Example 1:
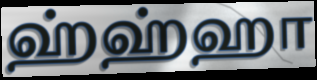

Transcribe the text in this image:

ஹ்ஹ்ஹா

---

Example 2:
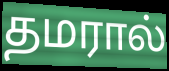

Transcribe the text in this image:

தமரால்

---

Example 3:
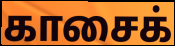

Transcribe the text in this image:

காசைக்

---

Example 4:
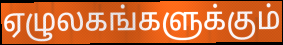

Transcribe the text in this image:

ஏழுலகங்களுக்கும்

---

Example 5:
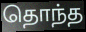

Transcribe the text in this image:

தொந்த